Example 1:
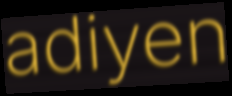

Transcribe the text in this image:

adiyen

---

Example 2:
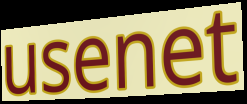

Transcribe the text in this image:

usenet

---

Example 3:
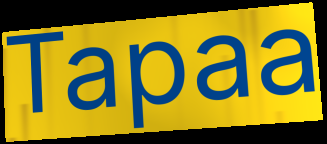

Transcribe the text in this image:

Tapaa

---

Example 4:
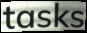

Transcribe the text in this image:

tasks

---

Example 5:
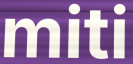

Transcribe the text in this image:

miti